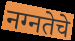
नग्नतेचे